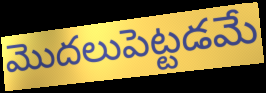
మొదలుపెట్టడమే